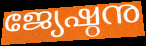
ജ്യേഷ്ഠനു